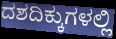
ದಶದಿಕ್ಕುಗಳಲ್ಲಿ